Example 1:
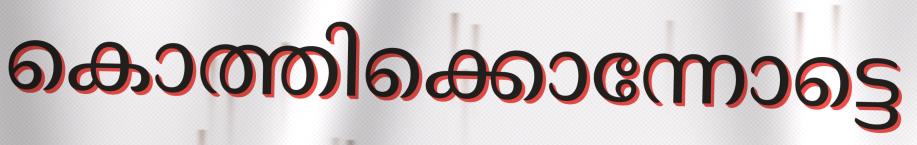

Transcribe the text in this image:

കൊത്തിക്കൊന്നോട്ടെ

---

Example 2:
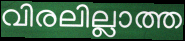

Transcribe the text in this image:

വിരലില്ലാത്ത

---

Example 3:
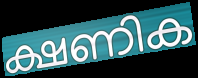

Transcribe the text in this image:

ക്ഷണിക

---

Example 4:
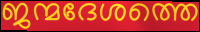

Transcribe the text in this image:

ജന്മദേശത്തെ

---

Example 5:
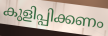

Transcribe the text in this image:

കുളിപ്പിക്കണം